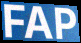
FAP